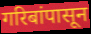
गरिबांपासून